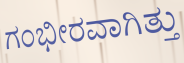
ಗಂಭೀರವಾಗಿತ್ತು